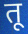
तू